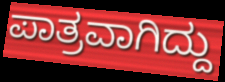
ಪಾತ್ರವಾಗಿದ್ದು